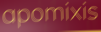
apomixis